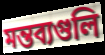
মন্তব্যগুলি